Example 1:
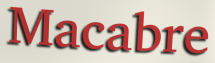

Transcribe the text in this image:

Macabre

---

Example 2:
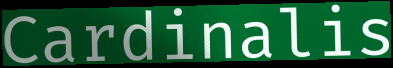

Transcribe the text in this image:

Cardinalis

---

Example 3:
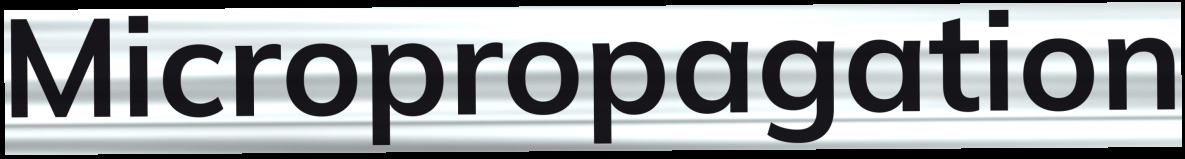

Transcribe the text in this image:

Micropropagation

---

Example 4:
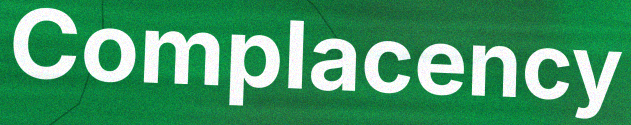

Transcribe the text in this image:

Complacency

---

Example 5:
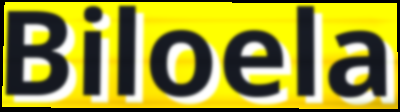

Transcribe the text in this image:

Biloela